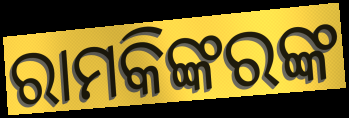
ରାମକିଙ୍କରଙ୍କ